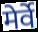
मेर्वे